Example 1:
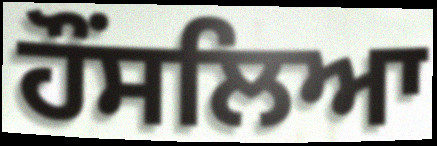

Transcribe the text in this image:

ਹੌਂਸਲਿਆ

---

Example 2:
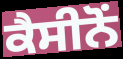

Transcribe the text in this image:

ਕੈਸੀਨੋਂ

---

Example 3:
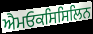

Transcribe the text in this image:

ਐਮਓਕਸਿਸਿਲਿਨ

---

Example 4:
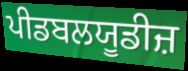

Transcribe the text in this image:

ਪੀਡਬਲਯੂਡੀਜ਼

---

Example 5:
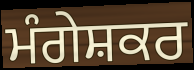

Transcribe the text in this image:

ਮੰਗੇਸ਼ਕਰ